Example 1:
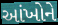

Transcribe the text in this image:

આંખોને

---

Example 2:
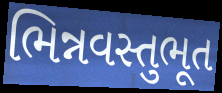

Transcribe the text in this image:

ભિન્નવસ્તુભૂત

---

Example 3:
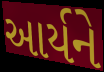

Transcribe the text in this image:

આર્યને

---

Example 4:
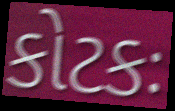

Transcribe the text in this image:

કોટકઃ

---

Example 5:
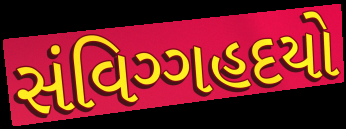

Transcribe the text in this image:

સંવિગ્ગહદયો